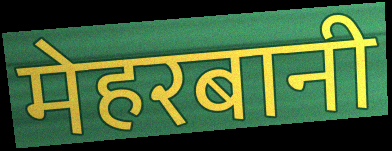
मेहरबानी